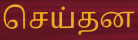
செய்தன